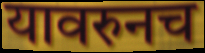
यावरुनच